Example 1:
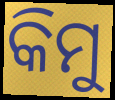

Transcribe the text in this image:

କିମୁ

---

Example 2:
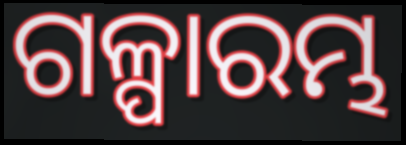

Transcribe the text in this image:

ଗଳ୍ପାରମ୍ଭ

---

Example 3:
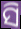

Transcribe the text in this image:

ସି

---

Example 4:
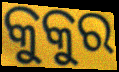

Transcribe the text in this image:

କୁକୁର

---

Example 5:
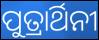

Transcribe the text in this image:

ପୁତ୍ରାର୍ଥିନୀ